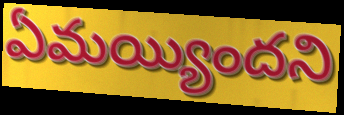
ఏమయ్యిందని